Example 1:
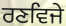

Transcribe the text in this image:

ਰਣਵਿਜੇ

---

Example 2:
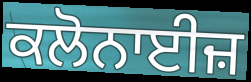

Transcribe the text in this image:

ਕਲੋਨਾਈਜ਼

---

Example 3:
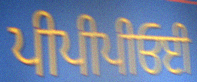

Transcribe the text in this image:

ਪੀਪੀਪੀਓਈ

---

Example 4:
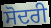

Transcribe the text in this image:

ਸੋਦਰੀ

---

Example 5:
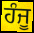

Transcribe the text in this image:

ਹੰਜੂ